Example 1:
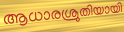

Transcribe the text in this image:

ആധാരശ്രുതിയായി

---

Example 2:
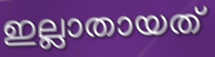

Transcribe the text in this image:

ഇല്ലാതായത്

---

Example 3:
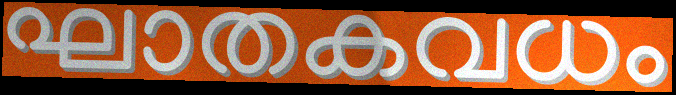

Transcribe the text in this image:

ഘാതകവധം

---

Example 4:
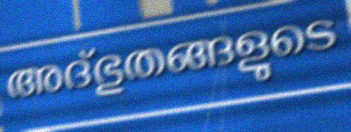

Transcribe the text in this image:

അദ്ഭുതങ്ങളുടെ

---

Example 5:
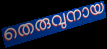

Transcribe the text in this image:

തെരുവുനായ